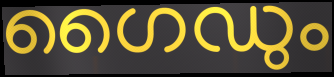
ഗൈഡും